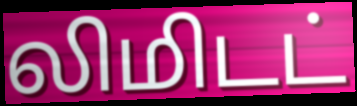
லிமிடட்